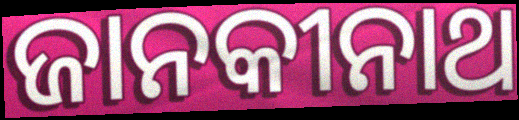
ଜାନକୀନାଥ